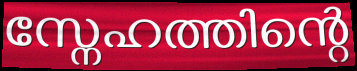
സ്നേഹത്തിന്റെ